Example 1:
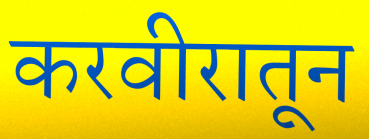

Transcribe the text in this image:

करवीरातून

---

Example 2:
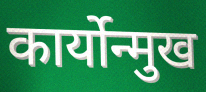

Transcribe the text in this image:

कार्योन्मुख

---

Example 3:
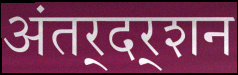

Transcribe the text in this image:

अंतर्दर्शन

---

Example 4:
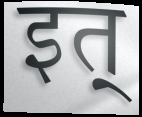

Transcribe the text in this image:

इत्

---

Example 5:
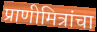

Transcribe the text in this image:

प्राणीमित्रांचा